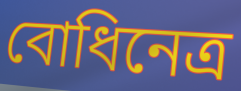
বোধিনেত্ৰ